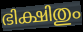
ഭിക്ഷിതും